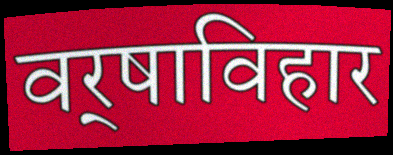
वर्षाविहार